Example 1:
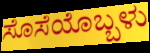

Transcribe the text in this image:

ಸೊಸೆಯೊಬ್ಬಳು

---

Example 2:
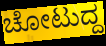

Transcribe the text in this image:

ಚೋಟುದ್ದ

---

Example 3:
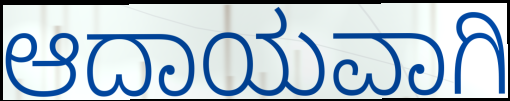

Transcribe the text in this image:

ಆದಾಯವಾಗಿ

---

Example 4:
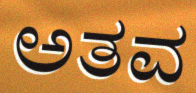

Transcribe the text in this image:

ಅತವ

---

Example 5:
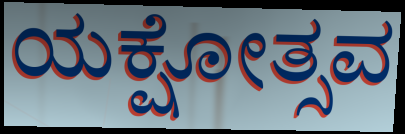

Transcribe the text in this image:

ಯಕ್ಷೋತ್ಸವ